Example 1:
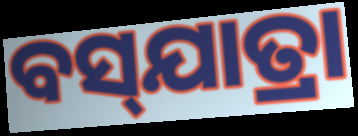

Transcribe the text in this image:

ବସ୍‌ଯାତ୍ରା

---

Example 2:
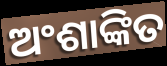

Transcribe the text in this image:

ଅଂଶାଙ୍କିତ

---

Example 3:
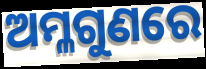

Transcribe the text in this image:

ଅମ୍ଳଗୁଣରେ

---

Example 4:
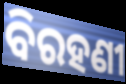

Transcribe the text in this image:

ବିରହଣୀ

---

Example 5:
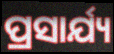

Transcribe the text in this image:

ପ୍ରସାର୍ଯ୍ୟ